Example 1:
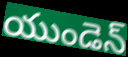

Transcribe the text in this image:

యుండెన్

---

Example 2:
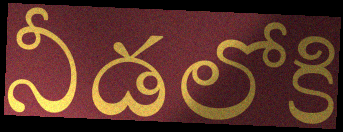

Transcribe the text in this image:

నీడలోకి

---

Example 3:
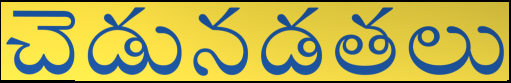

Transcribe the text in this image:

చెడునడతలు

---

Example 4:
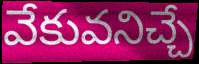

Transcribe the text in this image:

వేకువనిచ్చే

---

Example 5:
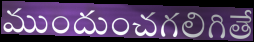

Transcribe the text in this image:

ముందుంచగలిగితే